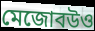
মেজোবউও